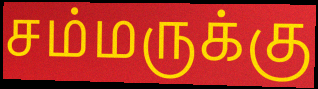
சம்மருக்கு